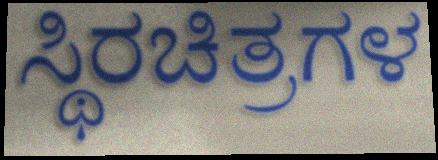
ಸ್ಥಿರಚಿತ್ರಗಳ